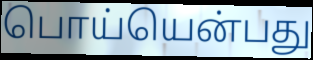
பொய்யென்பது